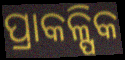
ପ୍ରାକଳ୍ପିକ